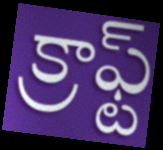
క్రాఫ్ట్